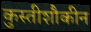
कुस्तीशौकीन